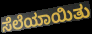
ಸೆಲೆಯಾಯಿತು